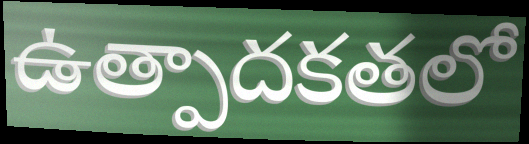
ఉత్పాదకతలో